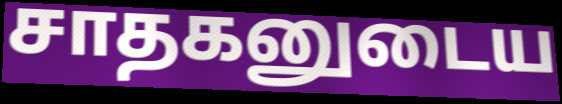
சாதகனுடைய